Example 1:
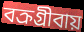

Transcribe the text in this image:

বক্রগ্রীবায়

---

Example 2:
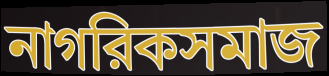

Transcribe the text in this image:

নাগরিকসমাজ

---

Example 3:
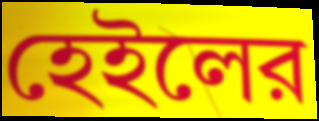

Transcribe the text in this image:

হেইলের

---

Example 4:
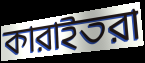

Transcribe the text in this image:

কারাইতরা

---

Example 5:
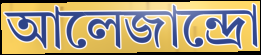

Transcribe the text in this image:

আলেজান্দ্রো